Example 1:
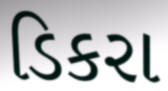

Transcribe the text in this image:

ડિકરા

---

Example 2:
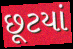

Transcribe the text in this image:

છૂટયાં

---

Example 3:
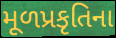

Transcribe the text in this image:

મૂળપ્રકૃતિના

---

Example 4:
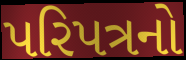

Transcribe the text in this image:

પરિપત્રનો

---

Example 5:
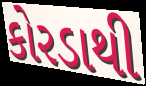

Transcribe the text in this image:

કોરડાથી